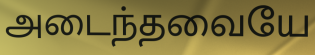
அடைந்தவையே